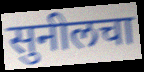
सुनीलचा